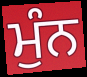
ਮੁੰਨ